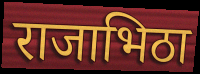
राजाभिठा